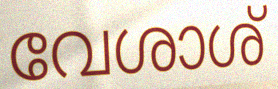
വേശാശ്